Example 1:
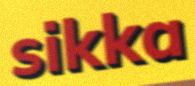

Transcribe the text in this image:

sikka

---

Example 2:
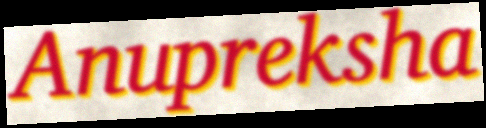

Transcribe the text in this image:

Anupreksha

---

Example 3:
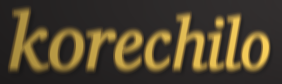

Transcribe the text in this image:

korechilo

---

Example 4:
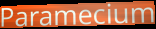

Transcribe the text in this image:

Paramecium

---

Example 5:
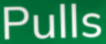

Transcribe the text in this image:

Pulls